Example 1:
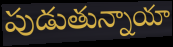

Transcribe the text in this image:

పుడుతున్నాయా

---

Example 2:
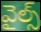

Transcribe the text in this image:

వైల్స్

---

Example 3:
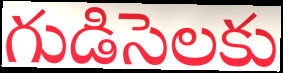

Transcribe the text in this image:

గుడిసెలకు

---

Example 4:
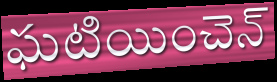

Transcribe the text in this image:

ఘటియించెన్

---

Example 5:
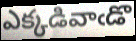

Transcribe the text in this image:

ఎక్కడివాఁడొ